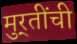
मुर्तींची